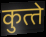
कुत्‍ते